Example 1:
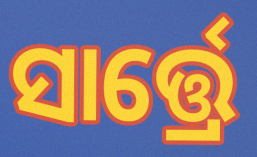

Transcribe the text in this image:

ସାର୍ତ୍ତ୍ରେ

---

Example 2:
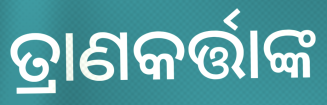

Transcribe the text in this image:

ତ୍ରାଣକର୍ତ୍ତାଙ୍କ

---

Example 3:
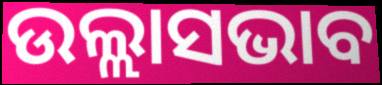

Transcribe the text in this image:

ଉଲ୍ଲାସଭାବ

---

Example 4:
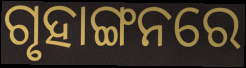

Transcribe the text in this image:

ଗୃହାଙ୍ଗନରେ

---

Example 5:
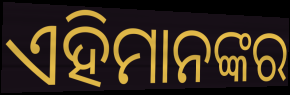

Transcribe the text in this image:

ଏହିମାନଙ୍କର